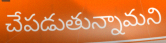
చేపడుతున్నామని